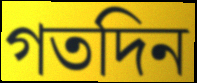
গতদিন